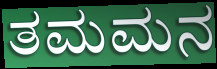
ತಮಮನ